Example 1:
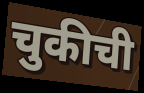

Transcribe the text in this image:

चुकीची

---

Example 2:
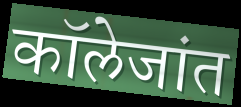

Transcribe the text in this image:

कॉलेजांत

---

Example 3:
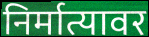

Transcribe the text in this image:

निर्मात्यावर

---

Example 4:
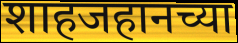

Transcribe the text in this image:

शाहजहानच्या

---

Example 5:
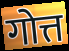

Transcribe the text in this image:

गोत्त